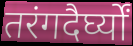
तरंगदैर्घ्यों